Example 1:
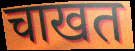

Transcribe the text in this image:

चाखत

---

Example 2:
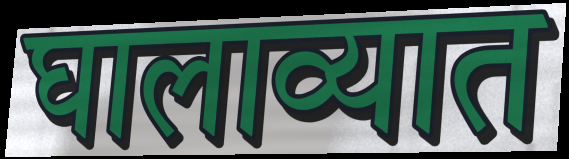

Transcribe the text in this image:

घालाव्यात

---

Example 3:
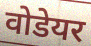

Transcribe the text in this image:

वोडेयर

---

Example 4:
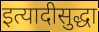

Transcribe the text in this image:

इत्यादीसुद्धा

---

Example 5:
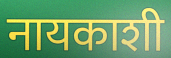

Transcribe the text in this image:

नायकाशी